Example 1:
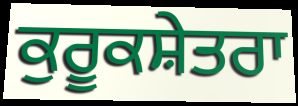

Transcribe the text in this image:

ਕੁਰੂਕਸ਼ੇਤਰਾ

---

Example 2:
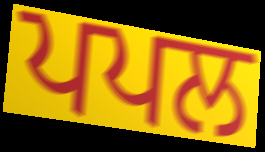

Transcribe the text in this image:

ਪਪਲ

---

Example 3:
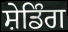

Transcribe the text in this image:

ਸ਼ੇਡਿੰਗ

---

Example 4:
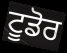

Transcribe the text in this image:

ਟੂਡੋਰ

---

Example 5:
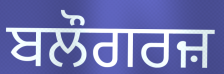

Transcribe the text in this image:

ਬਲੌਗਰਜ਼